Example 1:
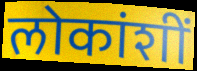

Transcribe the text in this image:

लोकांशीं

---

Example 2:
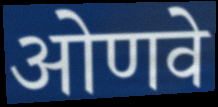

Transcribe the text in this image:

ओणवे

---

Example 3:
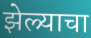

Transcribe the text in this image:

झेल्याचा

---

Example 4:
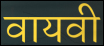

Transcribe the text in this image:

वायवी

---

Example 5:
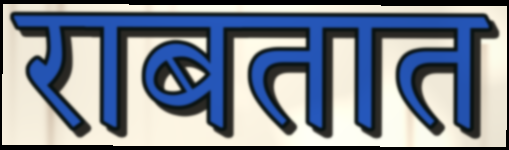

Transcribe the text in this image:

राबतात